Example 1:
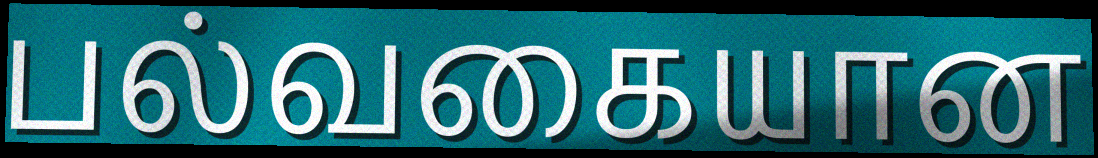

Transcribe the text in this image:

பல்வகையான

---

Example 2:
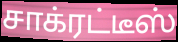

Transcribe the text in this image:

சாக்ரட்டீஸ்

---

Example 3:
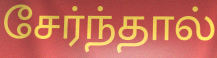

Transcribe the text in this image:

சேர்ந்தால்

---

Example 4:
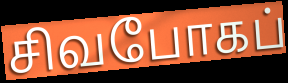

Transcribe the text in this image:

சிவபோகப்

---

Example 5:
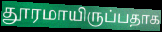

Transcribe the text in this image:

தூரமாயிருப்பதாக